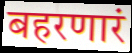
बहरणारं